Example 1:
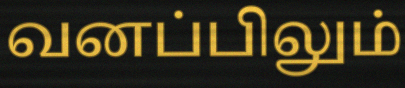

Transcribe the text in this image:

வனப்பிலும்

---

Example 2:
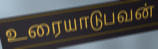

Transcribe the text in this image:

உரையாடுபவன்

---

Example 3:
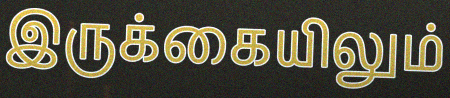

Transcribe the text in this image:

இருக்கையிலும்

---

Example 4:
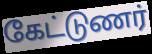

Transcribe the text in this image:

கேட்டுணர்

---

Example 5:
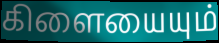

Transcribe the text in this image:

கிளையையும்